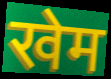
खेम